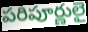
పరిపూర్ణులై